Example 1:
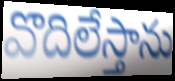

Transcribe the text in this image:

వొదిలేస్తాను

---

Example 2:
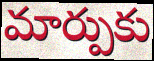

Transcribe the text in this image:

మార్పుకు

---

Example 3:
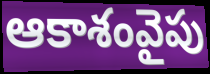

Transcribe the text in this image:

ఆకాశంవైపు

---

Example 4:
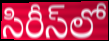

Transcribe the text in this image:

సిరీస్‌లో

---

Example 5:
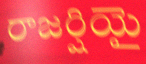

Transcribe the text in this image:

రాజర్షియై